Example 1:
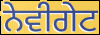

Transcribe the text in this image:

ਨੇਵੀਗੇਟ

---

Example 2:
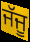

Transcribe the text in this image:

ਜੱਜੂ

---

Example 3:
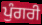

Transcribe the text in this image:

ਪੁੰਗਰੀ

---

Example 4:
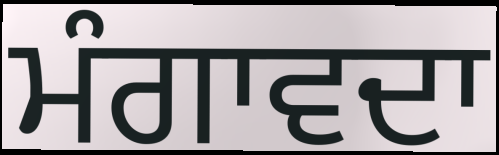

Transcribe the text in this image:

ਮੰਗਾਵਦਾ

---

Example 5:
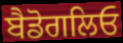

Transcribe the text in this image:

ਬੈਡੋਗਲਿਓ